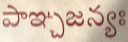
పాఞ్చజన్యః